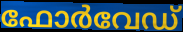
ഫോർവേഡ്